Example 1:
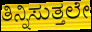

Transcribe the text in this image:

ತಿನ್ನಿಸುತ್ತಲೇ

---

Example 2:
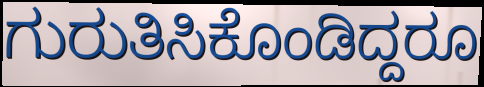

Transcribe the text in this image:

ಗುರುತಿಸಿಕೊಂಡಿದ್ದರೂ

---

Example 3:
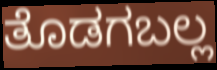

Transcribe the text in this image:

ತೊಡಗಬಲ್ಲ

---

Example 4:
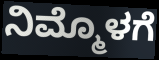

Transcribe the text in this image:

ನಿಮ್ಮೊಳಗೆ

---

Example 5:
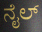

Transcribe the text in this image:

ನೈಲ್